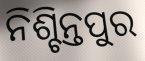
ନିଶ୍ଚିନ୍ତପୁର